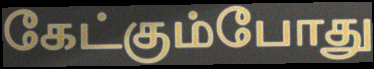
கேட்கும்போது